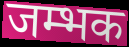
जम्भक